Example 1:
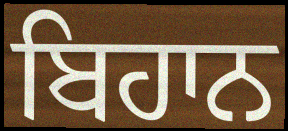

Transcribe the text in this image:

ਬਿਹਾਨ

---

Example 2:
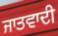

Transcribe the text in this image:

ਜਾਤਵਾਦੀ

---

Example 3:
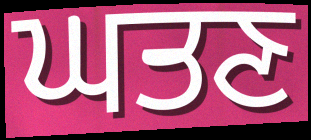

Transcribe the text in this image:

ਘਤਣ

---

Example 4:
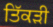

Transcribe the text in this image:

ਤਿੱਕੜੀ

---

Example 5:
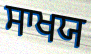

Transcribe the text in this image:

ਸਾਖਯ